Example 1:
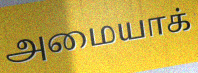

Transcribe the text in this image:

அமையாக்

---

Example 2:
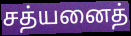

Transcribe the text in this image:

சத்யனைத்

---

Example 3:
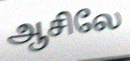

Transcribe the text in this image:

ஆசிலே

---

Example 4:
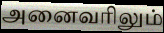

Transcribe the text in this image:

அனைவரிலும்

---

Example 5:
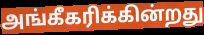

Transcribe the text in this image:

அங்கீகரிக்கின்றது